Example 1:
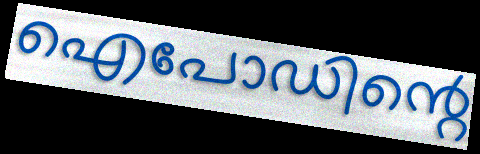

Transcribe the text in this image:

ഐപോഡിന്റെ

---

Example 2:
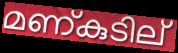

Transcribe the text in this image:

മണ്കുടില്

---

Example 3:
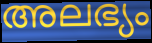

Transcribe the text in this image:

അലഭ്യം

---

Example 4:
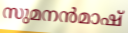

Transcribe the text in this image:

സുമനൻമാഷ്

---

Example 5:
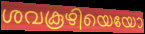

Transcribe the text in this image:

ശവകൂഴിയെയോ